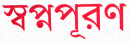
স্বপ্নপূরণ